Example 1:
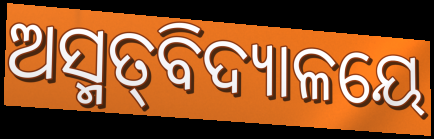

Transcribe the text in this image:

ଅସ୍ମତ୍‌ବିଦ୍ୟାଳୟେ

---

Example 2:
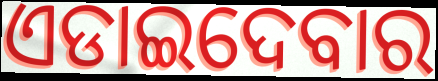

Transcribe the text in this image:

ଏଡାଇଦେବାର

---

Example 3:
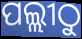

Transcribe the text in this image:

ପଲ୍ଲୀଠୁ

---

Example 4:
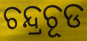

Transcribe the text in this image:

ଚନ୍ଦ୍ରଚୂଡ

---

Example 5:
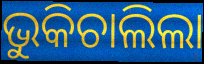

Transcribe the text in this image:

ଭୁକିଚାଲିଲା